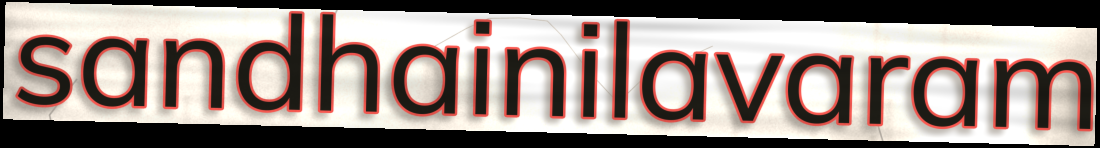
sandhainilavaram